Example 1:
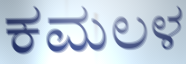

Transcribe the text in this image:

ಕಮಲಳ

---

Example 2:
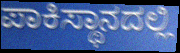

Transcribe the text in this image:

ಪಾಕಿಸ್ಥಾನದಲ್ಲಿ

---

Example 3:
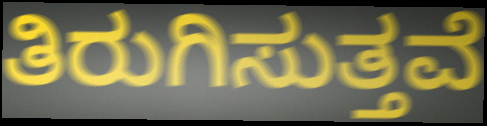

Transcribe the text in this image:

ತಿರುಗಿಸುತ್ತವೆ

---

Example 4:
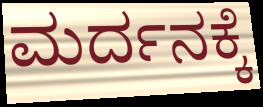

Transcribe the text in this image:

ಮರ್ದನಕ್ಕೆ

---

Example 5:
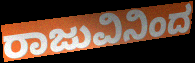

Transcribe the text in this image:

ರಾಜುವಿನಿಂದ